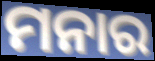
ମନାର